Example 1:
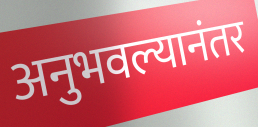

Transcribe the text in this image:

अनुभवल्यानंतर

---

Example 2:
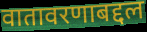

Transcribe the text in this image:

वातावरणाबद्दल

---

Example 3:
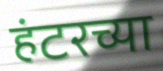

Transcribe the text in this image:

हंटरच्या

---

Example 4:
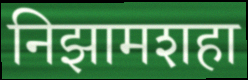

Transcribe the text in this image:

निझामशहा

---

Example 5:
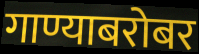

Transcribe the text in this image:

गाण्याबरोबर